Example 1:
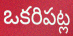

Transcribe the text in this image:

ఒకరిపట్ల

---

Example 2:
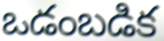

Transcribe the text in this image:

ఒడంబడిక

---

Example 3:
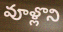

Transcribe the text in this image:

వూళ్లొని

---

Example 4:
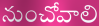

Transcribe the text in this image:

నుంచోవాలి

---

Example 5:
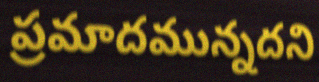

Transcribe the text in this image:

ప్రమాదమున్నదని